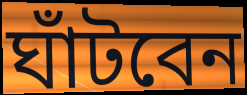
ঘাঁটবেন